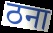
ठना